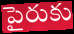
పైరుకు